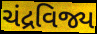
ચંદ્રવિજ્ય